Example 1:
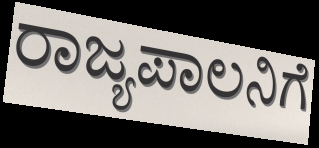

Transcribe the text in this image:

ರಾಜ್ಯಪಾಲನಿಗೆ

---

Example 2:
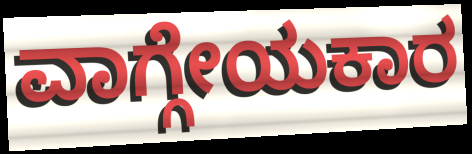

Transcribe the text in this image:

ವಾಗ್ಗೇಯಕಾರ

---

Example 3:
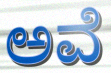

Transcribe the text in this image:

ಅವೆ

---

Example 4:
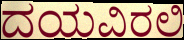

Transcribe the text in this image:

ದಯವಿರಲಿ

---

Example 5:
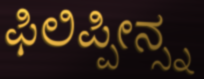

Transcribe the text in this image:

ಫಿಲಿಪ್ಪೀನ್ಸ್ನ